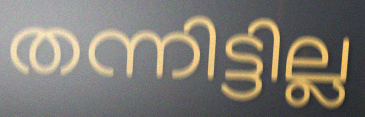
തന്നിട്ടില്ല